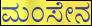
ಮಂಸೇನ